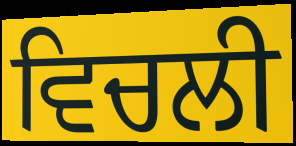
ਵਿਚਲੀ